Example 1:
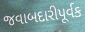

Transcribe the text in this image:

જવાબદારીપૂર્વક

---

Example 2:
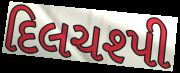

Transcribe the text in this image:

દિલચશ્પી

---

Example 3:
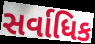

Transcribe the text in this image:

સર્વાધિક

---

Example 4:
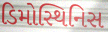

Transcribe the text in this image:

ડિમોસ્થિનિસ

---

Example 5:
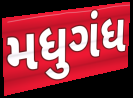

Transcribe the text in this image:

મધુગંધ